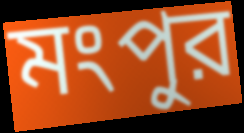
মংপুর